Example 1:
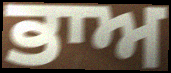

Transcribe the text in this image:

ਭਾਅ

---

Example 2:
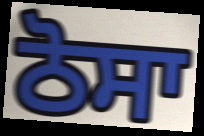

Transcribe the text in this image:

ਠੋਸਾ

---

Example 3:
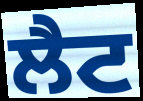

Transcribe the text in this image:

ਲੈਟ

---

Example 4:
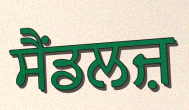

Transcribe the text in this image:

ਸੈਂਡਲਜ਼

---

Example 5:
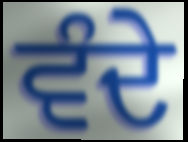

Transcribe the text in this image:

ਵੰਦੇ